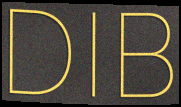
DIB